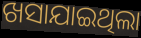
ଖସାଯାଇଥିଲା